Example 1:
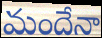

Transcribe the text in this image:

మందేనా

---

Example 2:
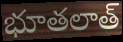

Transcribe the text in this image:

భూతలాత్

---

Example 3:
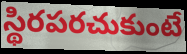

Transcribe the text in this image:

స్థిరపరచుకుంటే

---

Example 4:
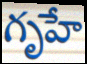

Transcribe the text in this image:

గృహే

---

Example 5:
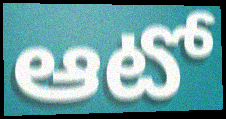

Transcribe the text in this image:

ఆటో